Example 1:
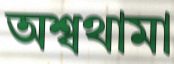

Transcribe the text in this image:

অশ্বথামা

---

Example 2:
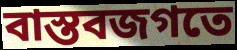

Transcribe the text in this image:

বাস্তবজগতে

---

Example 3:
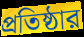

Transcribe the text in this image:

প্রতিষ্ঠার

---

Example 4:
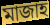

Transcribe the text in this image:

মাজাহ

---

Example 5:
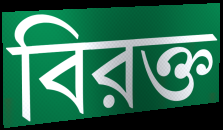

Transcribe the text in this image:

বিরক্ত